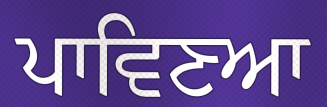
ਪਾਵਿਣਆ